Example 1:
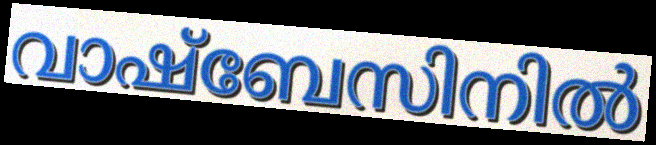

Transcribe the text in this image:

വാഷ്ബേസിനിൽ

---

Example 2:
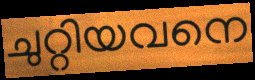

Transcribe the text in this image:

ചുറ്റിയവനെ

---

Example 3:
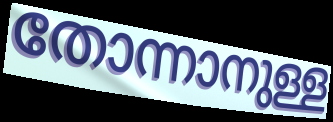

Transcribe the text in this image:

തോന്നാനുള്ള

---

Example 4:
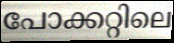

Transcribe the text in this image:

പോക്കറ്റിലെ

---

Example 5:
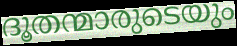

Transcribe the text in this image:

ദൂതന്മാരുടെയും